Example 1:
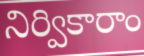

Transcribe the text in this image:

నిర్వికారాం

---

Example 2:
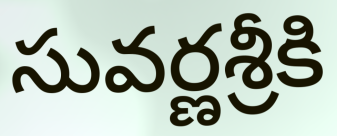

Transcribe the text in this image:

సువర్ణశ్రీకి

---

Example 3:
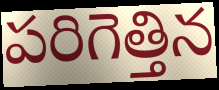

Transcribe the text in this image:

పరిగెత్తిన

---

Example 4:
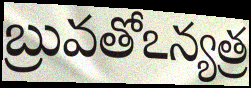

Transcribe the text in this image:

బ్రువతోఽన్యత్ర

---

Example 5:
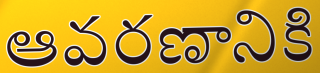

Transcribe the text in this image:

ఆవరణానికి